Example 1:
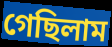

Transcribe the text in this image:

গেছিলাম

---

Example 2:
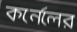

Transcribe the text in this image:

কর্নেলের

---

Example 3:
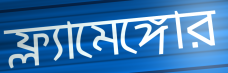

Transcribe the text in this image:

ফ্ল্যামেঙ্গোর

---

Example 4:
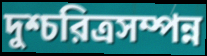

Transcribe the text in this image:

দুশ্চরিত্রসম্পন্ন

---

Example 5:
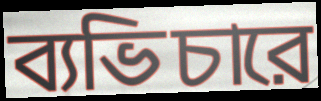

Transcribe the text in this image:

ব্যভিচারে